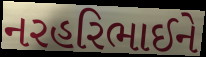
નરહરિભાઈને